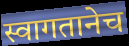
स्वागतानेच